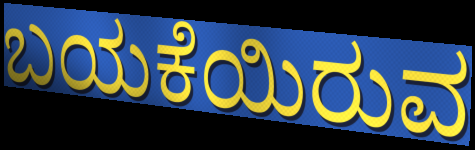
ಬಯಕೆಯಿರುವ